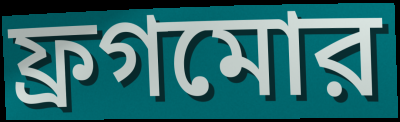
ফ্রগমোর